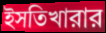
ইসতিখারার